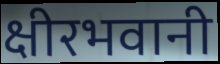
क्षीरभवानी